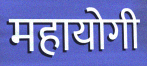
महायोगी